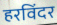
हरविंदर